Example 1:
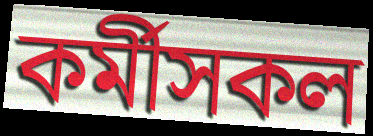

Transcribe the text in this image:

কৰ্মীসকল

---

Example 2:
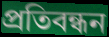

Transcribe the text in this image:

প্ৰতিবন্ধন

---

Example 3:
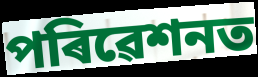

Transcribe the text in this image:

পৰিৱেশনত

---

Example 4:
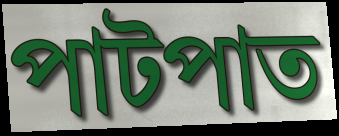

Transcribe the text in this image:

পাটপাত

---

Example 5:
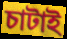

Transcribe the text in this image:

চাটাই